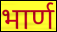
भार्ण